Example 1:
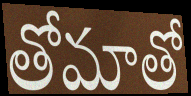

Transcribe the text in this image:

తోమాతో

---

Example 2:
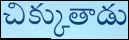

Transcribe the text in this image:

చిక్కుతాడు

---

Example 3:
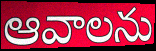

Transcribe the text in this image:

ఆవాలను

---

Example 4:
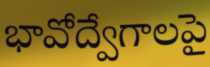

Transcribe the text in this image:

భావోద్వేగాలపై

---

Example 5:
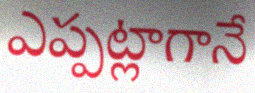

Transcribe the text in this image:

ఎప్పట్లాగానే